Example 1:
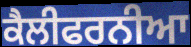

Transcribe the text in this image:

ਕੈਲੀਫਰਨੀਆ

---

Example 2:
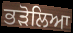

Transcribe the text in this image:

ਭੜੋਲਿਆ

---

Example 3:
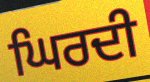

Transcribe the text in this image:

ਘਿਰਦੀ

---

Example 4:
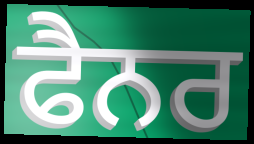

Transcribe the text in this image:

ਫੈਨਰ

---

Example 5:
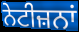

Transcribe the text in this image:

ਨੇਟੀਜ਼ਨਾਂ